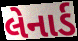
લેનાર્ડ